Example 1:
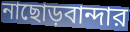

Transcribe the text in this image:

নাছোড়বান্দার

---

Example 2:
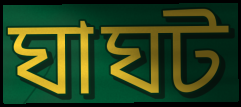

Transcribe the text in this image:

ঘাঘট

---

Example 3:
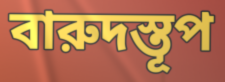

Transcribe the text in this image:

বারুদস্তূপ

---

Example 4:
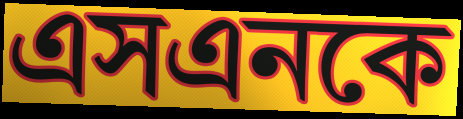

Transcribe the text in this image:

এসএনকে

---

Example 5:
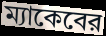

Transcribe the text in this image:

ম্যাকেবের